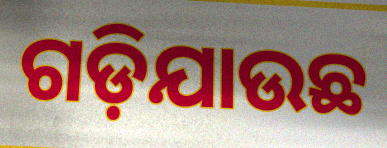
ଗଡ଼ିଯାଉଛ